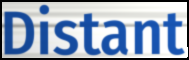
Distant